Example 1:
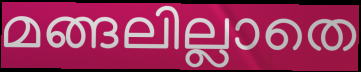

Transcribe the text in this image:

മങ്ങലില്ലാതെ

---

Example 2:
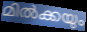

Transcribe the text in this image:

മിൽക്കയും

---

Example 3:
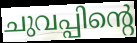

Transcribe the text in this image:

ചുവപ്പിന്റെ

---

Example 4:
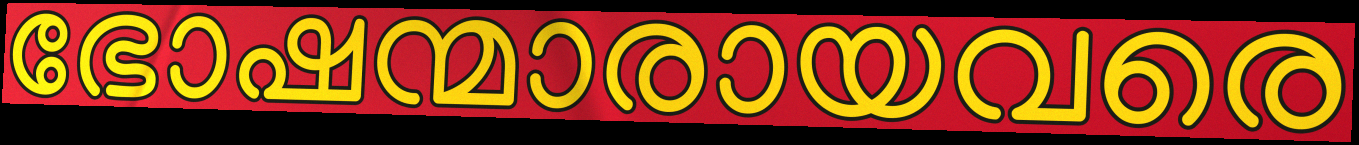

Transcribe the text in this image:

ഭോഷന്മാരായവരെ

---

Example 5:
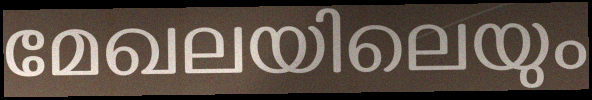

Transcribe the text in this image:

മേഖലയിലെയും